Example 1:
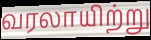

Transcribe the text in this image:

வரலாயிற்று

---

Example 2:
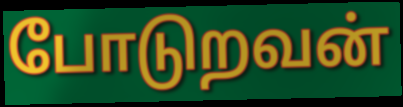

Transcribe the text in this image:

போடுறவன்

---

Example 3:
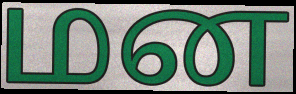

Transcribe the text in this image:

மன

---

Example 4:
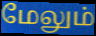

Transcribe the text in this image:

மேலும்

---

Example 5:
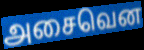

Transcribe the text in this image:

அசைவென